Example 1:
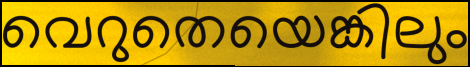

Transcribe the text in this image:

വെറുതെയെങ്കിലും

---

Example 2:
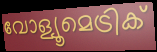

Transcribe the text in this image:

വോള്യൂമെട്രിക്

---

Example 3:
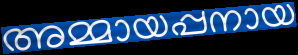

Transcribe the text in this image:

അമ്മായപ്പനായ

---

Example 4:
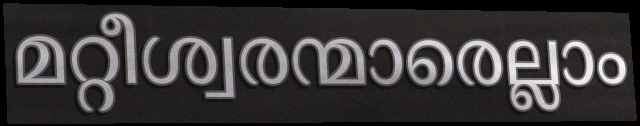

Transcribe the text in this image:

മറ്റീശ്വരന്മാരെല്ലാം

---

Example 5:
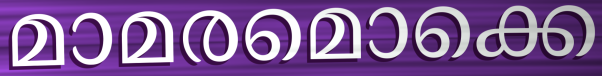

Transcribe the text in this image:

മാമരമൊക്കെ